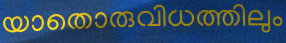
യാതൊരുവിധത്തിലും